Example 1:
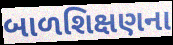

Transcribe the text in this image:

બાળશિક્ષણના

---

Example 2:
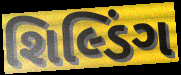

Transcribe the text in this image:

શિલ્ડિંગ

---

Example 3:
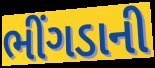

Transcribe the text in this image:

ભીંગડાની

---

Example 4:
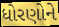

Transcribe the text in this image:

ધોરણોને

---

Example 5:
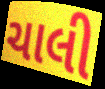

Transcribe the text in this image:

ચાલી